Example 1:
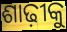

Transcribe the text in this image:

ଶାଢ଼ୀକୁ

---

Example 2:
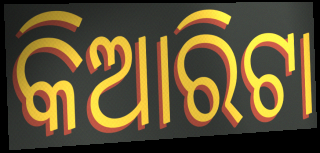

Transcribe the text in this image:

କିଆରିଟା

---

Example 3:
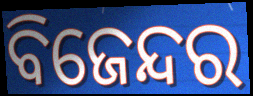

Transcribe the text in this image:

ବିଜେନ୍ଦର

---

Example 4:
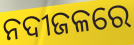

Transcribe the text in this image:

ନଦୀଜଳରେ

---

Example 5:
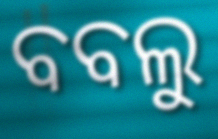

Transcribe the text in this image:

ବବଲୁ